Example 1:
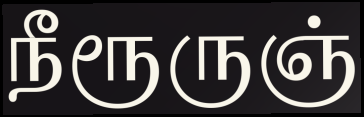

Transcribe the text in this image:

நீரூருஞ்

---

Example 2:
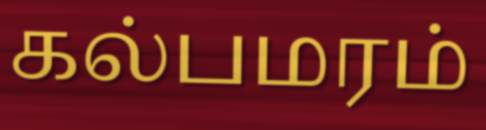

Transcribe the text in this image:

கல்பமரம்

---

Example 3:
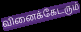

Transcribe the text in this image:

வினைக்கேடரும்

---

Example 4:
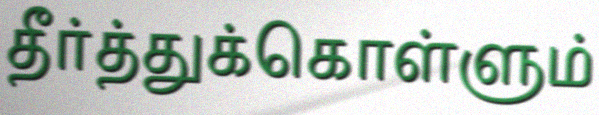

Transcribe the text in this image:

தீர்த்துக்கொள்ளும்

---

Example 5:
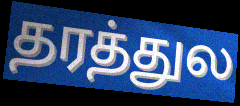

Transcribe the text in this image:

தரத்துல